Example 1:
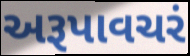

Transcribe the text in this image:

અરૂપાવચરં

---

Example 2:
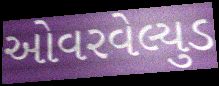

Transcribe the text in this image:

ઓવરવેલ્યુડ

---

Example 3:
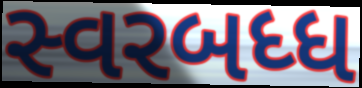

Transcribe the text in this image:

સ્વરબધ્ધ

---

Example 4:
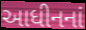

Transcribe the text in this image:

આધીનનાં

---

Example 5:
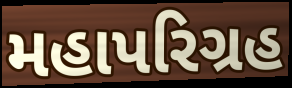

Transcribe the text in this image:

મહાપરિગ્રહ